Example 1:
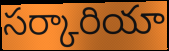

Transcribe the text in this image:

సర్కారియా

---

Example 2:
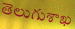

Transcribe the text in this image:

తెలుగుశాఖ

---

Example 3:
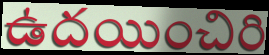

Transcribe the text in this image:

ఉదయించిరి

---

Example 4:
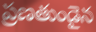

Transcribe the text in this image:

ప్రణతుండైన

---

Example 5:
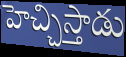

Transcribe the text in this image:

హెచ్చిస్తాడు